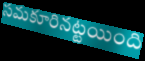
సమకూరినట్టయింది